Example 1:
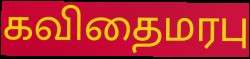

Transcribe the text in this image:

கவிதைமரபு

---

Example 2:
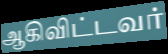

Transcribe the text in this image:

ஆகிவிட்டவர்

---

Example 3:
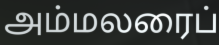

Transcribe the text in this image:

அம்மலரைப்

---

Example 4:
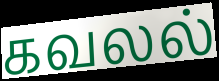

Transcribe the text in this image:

கவலல்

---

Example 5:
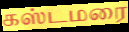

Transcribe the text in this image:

கஸ்டமரை